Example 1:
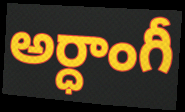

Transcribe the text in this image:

అర్ధాంగీ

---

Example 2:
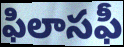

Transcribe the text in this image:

ఫిలాసఫీ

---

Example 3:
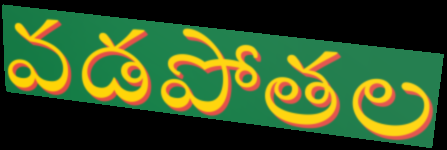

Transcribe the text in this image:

వడపోతల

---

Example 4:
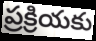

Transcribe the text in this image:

ప్రక్రియకు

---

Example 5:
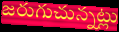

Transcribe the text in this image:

జరుగుచున్నట్లు